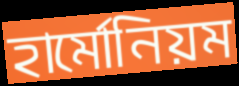
হার্মোনিয়ম